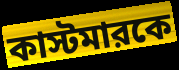
কাস্টমারকে